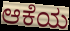
ಆಕೆಯ